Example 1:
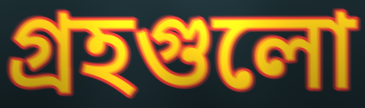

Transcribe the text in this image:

গ্রহগুলো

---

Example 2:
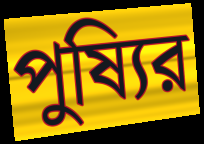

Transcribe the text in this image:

পুষ্যির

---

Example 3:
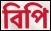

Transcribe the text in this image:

বিপি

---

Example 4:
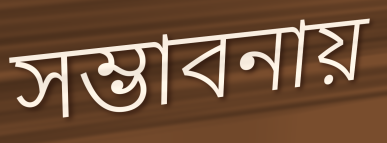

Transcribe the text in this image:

সম্ভাবনায়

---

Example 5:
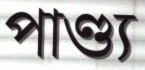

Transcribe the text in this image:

পাণ্ড্য